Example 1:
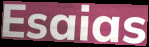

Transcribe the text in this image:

Esaias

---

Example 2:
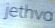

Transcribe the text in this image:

jethva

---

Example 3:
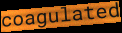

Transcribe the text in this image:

coagulated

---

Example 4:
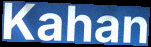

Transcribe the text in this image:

Kahan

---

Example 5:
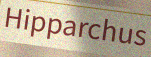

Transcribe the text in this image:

Hipparchus